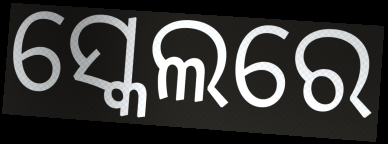
ସ୍କେଲରେ